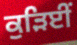
ਕੁੜਿਈਂ